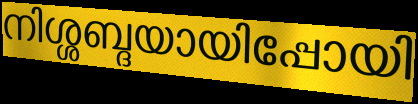
നിശ്ശബ്ദയായിപ്പോയി